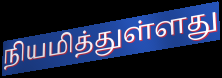
நியமித்துள்ளது